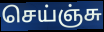
செய்ஞ்சு